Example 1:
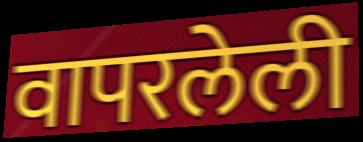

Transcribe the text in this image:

वापरलेली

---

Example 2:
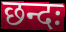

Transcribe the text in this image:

छन्दः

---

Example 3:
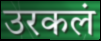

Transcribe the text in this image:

उरकलं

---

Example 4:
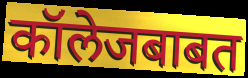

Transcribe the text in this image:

कॉलेजबाबत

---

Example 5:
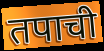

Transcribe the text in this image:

तपाची